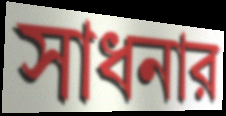
সাধনার